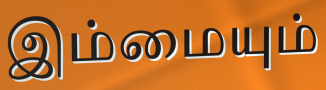
இம்மையும்